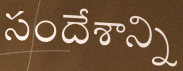
సందేశాన్ని